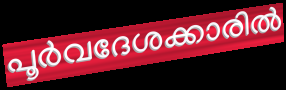
പൂർവദേശക്കാരിൽ